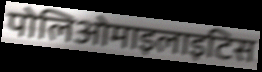
पोलिओमाइलाइटिस